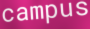
campus